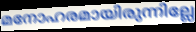
മനോഹരമായിരുന്നില്ലേ